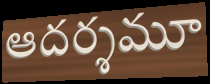
ఆదర్శమూ